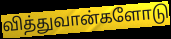
வித்துவான்களோடு